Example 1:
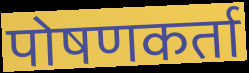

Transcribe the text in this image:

पोषणकर्ता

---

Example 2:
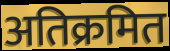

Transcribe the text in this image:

अतिक्रमित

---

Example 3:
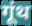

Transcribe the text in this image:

गूंथ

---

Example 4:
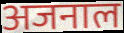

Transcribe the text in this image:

अजनाल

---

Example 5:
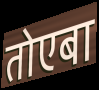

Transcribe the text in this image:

तोएबा